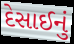
દેસાઈનું